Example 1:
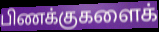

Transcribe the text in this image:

பிணக்குகளைக்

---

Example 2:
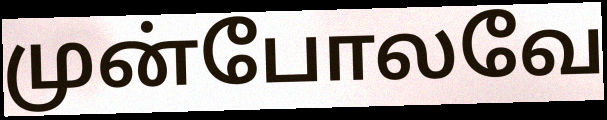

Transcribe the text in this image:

முன்போலவே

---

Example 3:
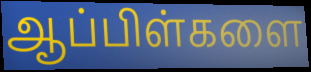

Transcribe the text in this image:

ஆப்பிள்களை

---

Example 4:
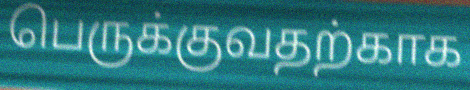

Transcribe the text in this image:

பெருக்குவதற்காக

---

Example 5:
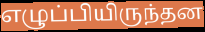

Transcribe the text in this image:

எழுப்பியிருந்தன